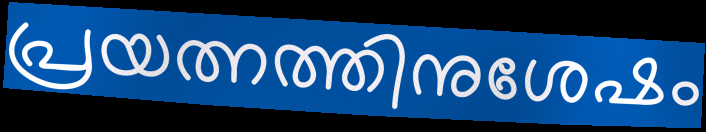
പ്രയത്നത്തിനുശേഷം